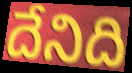
దేనిది